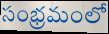
సంభ్రమంలో